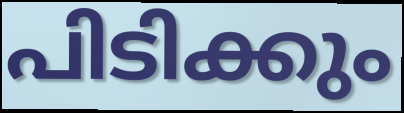
പിടിക്കും